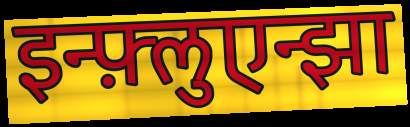
इन्फ़्लुएन्झा